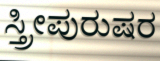
ಸ್ತ್ರೀಪುರುಷರ